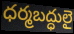
ధర్మబద్ధులై